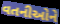
વતનીઓને